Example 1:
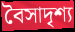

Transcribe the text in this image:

বৈসাদৃশ্য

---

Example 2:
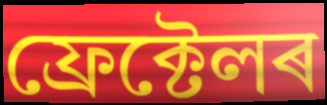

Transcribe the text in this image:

ফ্ৰেক্টেলৰ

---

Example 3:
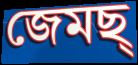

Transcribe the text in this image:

জেমছ্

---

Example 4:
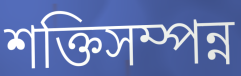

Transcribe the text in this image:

শক্তিসম্পন্ন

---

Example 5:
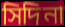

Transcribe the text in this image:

সিদিনা